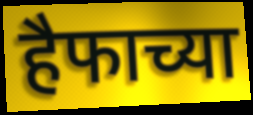
हैफाच्या